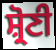
ਸ਼੍ਰੋਣੀ